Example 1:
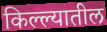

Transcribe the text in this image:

किल्ल्यातील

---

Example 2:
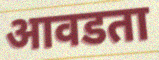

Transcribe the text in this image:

आवडता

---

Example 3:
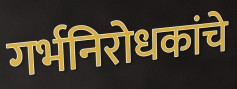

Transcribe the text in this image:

गर्भनिरोधकांचे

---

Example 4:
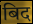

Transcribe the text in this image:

बिद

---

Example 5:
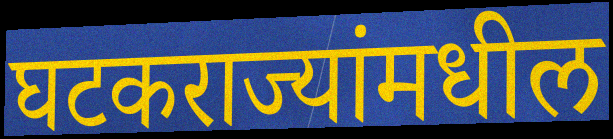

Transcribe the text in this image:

घटकराज्यांमधील